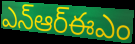
ఎన్ఆర్ఈఎం